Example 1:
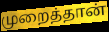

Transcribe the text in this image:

முறைத்தான்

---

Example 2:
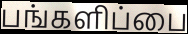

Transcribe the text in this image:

பங்களிப்பை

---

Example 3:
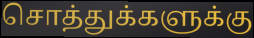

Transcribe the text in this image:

சொத்துக்களுக்கு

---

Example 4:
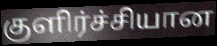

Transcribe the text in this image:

குளிர்ச்சியான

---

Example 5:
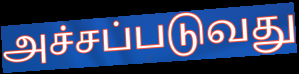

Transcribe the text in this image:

அச்சப்படுவது